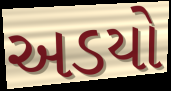
અડયો